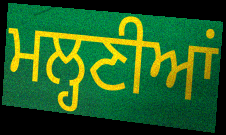
ਮਲ੍ਹਣੀਆਂ